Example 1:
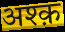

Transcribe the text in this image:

अश्क़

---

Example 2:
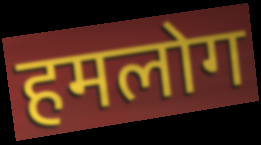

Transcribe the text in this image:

हमलोग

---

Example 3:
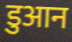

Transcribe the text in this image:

डुआन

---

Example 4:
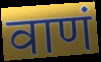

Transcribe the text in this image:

वाणं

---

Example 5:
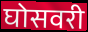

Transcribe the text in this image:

घोसवरी